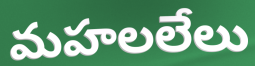
మహలలేలు